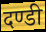
दण्डी